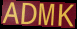
ADMK